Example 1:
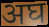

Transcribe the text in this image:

अघ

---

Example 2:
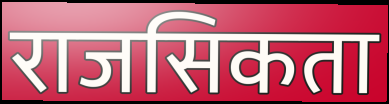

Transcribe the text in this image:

राजसिकता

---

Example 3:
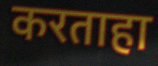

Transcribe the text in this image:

करताहा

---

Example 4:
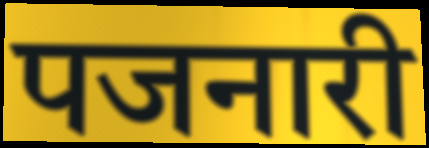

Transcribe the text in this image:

पजनारी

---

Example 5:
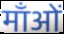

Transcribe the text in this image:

माँओं